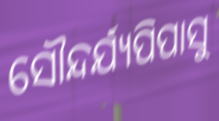
ସୌନ୍ଦର୍ଯ୍ୟପିପାସୁ